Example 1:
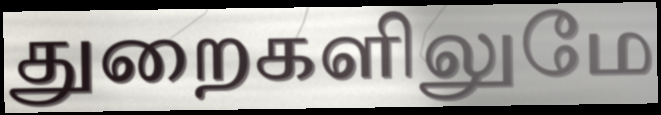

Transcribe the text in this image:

துறைகளிலுமே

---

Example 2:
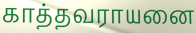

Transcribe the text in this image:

காத்தவராயனை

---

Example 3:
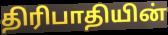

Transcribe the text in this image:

திரிபாதியின்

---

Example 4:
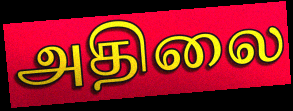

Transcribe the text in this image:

அதிலை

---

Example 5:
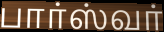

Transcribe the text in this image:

பார்ஸ்வர்